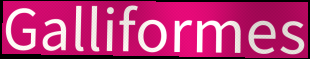
Galliformes